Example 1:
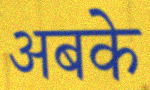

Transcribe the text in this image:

अबके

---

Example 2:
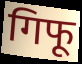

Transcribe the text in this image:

गिफू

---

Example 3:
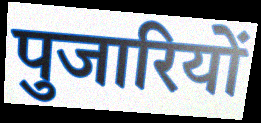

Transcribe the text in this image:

पुजारियों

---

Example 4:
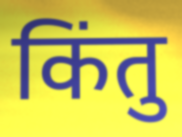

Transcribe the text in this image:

किंतु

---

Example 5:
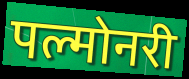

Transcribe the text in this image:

पल्मोनरी